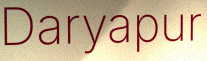
Daryapur